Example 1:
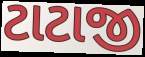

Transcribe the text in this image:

ટાટાજી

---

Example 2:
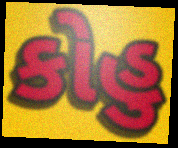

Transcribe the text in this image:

કોહુ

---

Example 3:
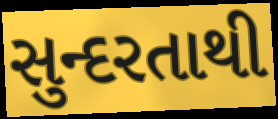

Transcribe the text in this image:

સુન્દરતાથી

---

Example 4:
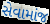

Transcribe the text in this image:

સેવામાંજ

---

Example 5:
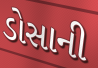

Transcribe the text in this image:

ડોસાની